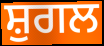
ਸ਼ੁਗਲ